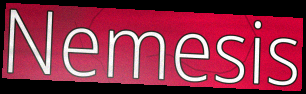
Nemesis